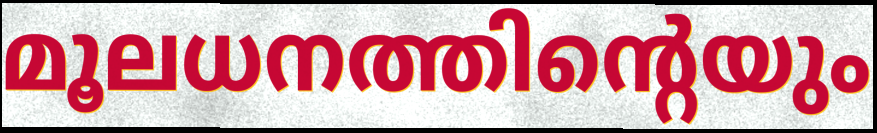
മൂലധനത്തിന്റെയും